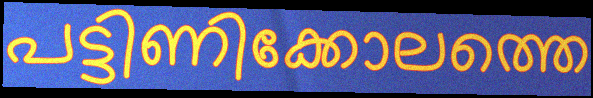
പട്ടിണിക്കോലത്തെ